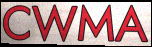
CWMA